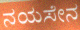
ನಯಸೇನ